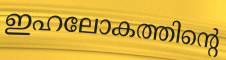
ഇഹലോകത്തിന്റെ